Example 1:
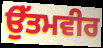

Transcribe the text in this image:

ਉੱਤਮਵੀਰ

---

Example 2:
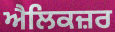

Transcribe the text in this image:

ਐਲਿਕਜ਼ਰ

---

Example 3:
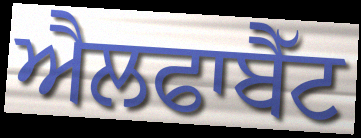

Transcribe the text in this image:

ਐਲਫਾਬੈੱਟ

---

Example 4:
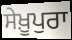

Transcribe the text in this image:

ਸੇਖ਼ੂਪੁਰਾ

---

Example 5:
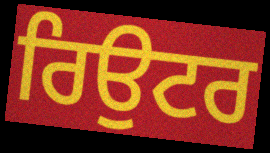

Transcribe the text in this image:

ਰਿਉਟਰ